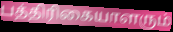
பத்திரிகையாளரும்